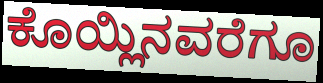
ಕೊಯ್ಲಿನವರೆಗೂ